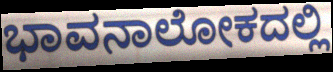
ಭಾವನಾಲೋಕದಲ್ಲಿ